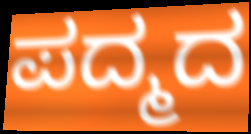
ಪದ್ಮದ